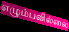
எழும்பவில்லை